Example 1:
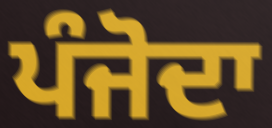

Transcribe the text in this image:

ਪੰਜੋਦਾ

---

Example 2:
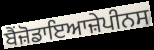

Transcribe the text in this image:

ਬੈਂਜ਼ੋਡਾਇਆਜ਼ੇਪੀਨਸ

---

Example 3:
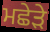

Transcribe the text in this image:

ਮਛੇੜੇ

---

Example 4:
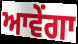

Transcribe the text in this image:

ਆਵੇਂਗਾ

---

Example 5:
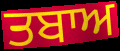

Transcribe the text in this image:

ਤਬਾਅ